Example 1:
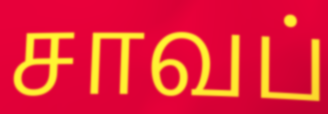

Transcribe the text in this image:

சாவப்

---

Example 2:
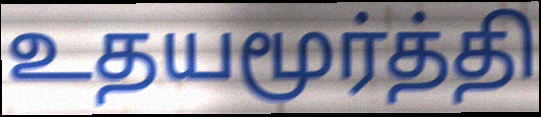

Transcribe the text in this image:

உதயமூர்த்தி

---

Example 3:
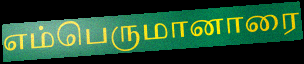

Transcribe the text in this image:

எம்பெருமானாரை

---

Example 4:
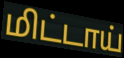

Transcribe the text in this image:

மிட்டாய்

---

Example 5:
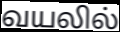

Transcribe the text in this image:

வயலில்